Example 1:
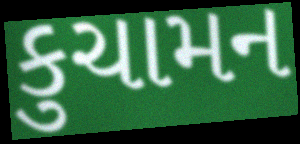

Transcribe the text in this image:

કુચામન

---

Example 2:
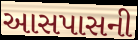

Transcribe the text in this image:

આસપાસની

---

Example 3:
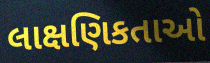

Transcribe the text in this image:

લાક્ષણિકતાઓ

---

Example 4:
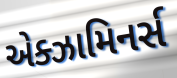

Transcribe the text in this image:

એક્ઝામિનર્સ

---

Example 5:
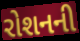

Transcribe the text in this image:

રોશનની